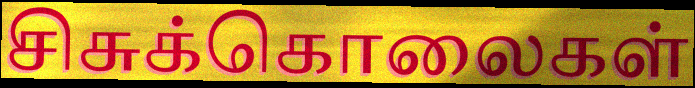
சிசுக்கொலைகள்